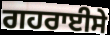
ਗਹਰਾਈਸੇ